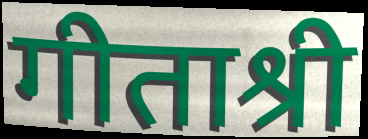
गीताश्री